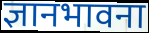
ज्ञानभावना